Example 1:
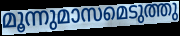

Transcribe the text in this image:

മൂന്നുമാസമെടുത്തു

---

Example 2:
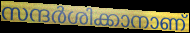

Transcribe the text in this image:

സന്ദർശിക്കാനാണ്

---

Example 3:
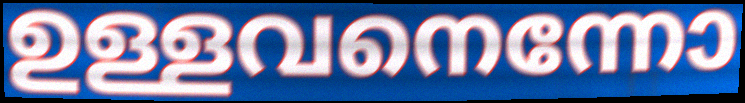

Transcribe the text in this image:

ഉള്ളവനെന്നോ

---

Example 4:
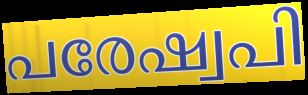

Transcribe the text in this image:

പരേഷ്വപി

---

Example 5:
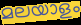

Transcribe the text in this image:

മലയാളം